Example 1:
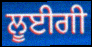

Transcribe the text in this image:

ਲੂਈਗੀ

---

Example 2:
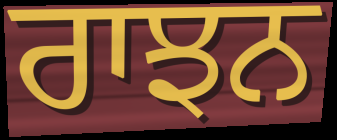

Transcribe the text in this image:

ਰਾਝਨ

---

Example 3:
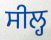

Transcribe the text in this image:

ਸੀਲ੍ਹ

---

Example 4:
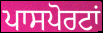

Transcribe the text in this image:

ਪਾਸਪੋਰਟਾਂ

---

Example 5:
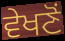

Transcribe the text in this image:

ਵੇਖਣੋਂ